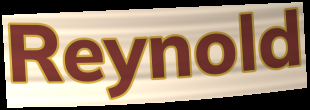
Reynold